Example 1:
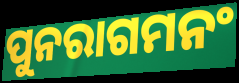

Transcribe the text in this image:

ପୁନରାଗମନଂ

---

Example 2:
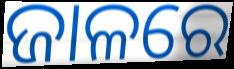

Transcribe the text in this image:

ଜାଳରେ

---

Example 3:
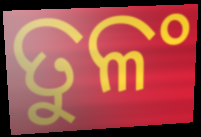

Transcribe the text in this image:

ତୁଳଂ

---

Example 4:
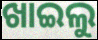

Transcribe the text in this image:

ଖାଇଲୁ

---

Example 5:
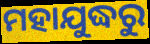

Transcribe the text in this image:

ମହାଯୁଦ୍ଧରୁ